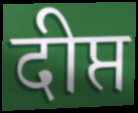
दीप्त